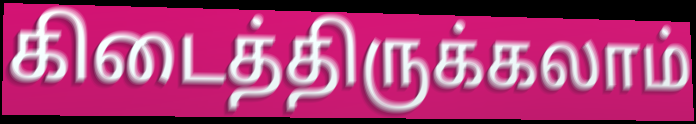
கிடைத்திருக்கலாம்